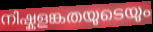
നിഷ്കളങ്കതയുടെയും